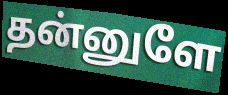
தன்னுளே